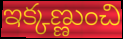
ఇక్కణ్ణుంచి